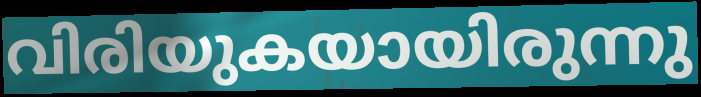
വിരിയുകയായിരുന്നു